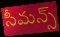
సీమన్స్